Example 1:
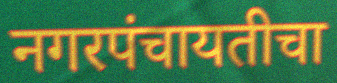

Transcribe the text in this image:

नगरपंचायतीचा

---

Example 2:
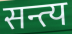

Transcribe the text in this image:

सन्त्य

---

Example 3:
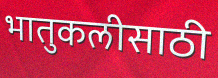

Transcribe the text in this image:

भातुकलीसाठी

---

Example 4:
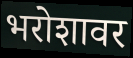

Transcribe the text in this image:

भरोशावर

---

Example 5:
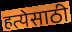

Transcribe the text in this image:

हत्येसाठी